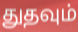
துதவும்